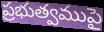
ప్రభుత్వముపై